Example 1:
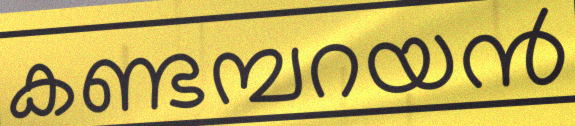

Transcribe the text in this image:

കണ്ടമ്പറയൻ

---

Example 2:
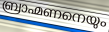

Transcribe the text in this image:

ബ്രാഹ്മണനെയും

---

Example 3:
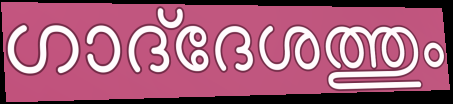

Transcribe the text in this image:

ഗാദ്‌ദേശത്തും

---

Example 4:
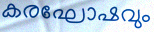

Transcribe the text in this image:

കരഘോഷവും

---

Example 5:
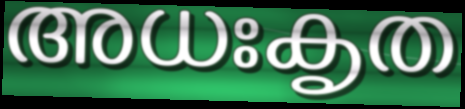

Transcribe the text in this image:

അധഃകൃത